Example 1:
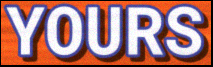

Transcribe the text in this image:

YOURS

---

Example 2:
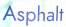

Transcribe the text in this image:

Asphalt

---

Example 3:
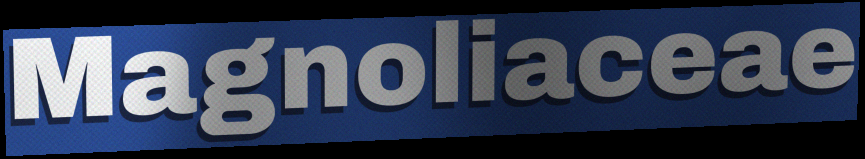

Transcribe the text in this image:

Magnoliaceae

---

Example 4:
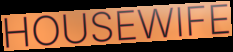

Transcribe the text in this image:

HOUSEWIFE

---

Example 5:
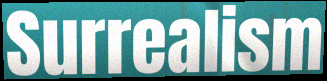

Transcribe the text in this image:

Surrealism